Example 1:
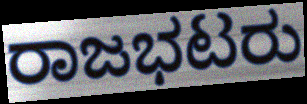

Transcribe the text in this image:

ರಾಜಭಟರು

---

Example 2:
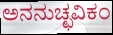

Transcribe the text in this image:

ಅನನುಚ್ಛವಿಕಂ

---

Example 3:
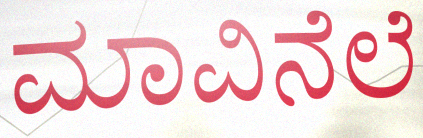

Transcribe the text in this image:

ಮಾವಿನೆಲೆ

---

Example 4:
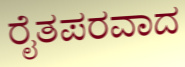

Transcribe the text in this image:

ರೈತಪರವಾದ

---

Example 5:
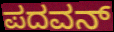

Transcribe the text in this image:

ಪದವನ್